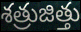
శత్రుజిత్తు